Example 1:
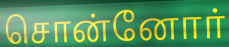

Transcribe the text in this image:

சொன்னோர்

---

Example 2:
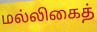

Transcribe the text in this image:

மல்லிகைத்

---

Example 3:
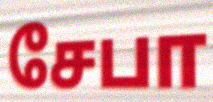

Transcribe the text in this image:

சேபா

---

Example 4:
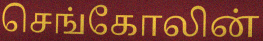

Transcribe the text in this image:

செங்கோலின்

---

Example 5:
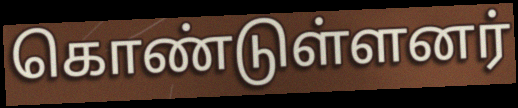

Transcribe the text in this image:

கொண்டுள்ளனர்